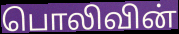
பொலிவின்